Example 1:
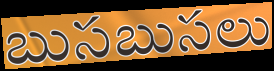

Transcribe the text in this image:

బుసబుసలు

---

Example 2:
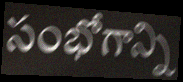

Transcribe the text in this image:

సంభోగాన్ని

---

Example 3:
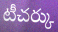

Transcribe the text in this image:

టీచర్కు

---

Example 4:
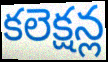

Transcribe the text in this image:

కలెక్షన్ల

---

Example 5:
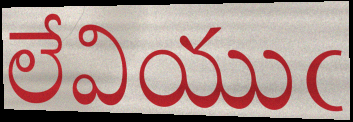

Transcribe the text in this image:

లేవియుఁ